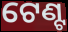
ଟେଣ୍ଟ